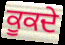
ਕੂਕਦੇ